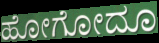
ಹೋಗೋದೂ